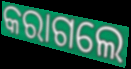
କରାଗଲେ